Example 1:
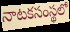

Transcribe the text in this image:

నాటకసంస్థలో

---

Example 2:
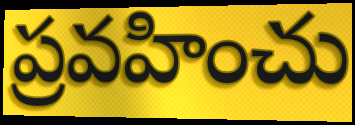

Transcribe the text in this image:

ప్రవహించు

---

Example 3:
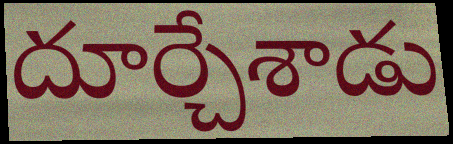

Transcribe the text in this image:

దూర్చేశాడు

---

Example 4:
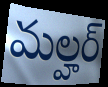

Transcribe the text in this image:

మల్హర్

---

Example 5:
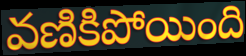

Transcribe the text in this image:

వణికిపోయింది